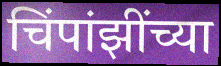
चिंपांझींच्या